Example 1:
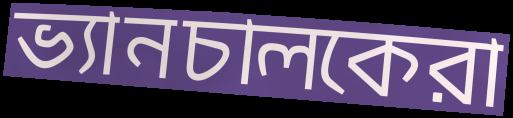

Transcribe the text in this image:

ভ্যানচালকেরা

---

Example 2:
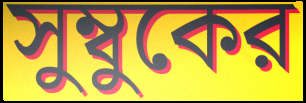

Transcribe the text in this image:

সুম্বুকের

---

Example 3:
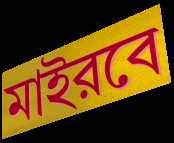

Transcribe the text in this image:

মাইরবে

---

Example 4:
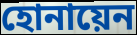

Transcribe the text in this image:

হোনায়েন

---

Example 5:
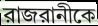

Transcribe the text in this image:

রাজরানীকে